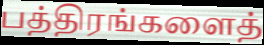
பத்திரங்களைத்